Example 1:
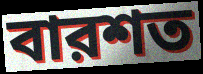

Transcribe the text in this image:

বারশত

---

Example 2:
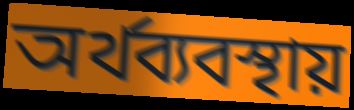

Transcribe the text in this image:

অর্থব্যবস্থায়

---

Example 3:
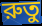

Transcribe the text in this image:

রুতু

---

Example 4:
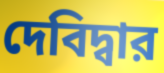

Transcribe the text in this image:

দেবিদ্বার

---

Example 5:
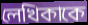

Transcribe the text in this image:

লেখিকাকে